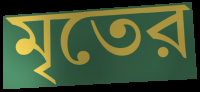
মৃতের